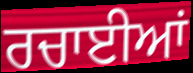
ਰਚਾਈਆਂ